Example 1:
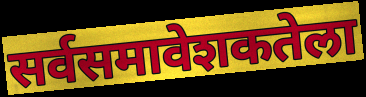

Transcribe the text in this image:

सर्वसमावेशकतेला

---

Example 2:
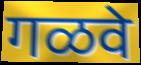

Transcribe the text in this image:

गळवे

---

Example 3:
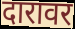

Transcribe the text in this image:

दारावर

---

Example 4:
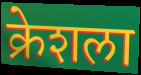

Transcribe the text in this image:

क्रेशला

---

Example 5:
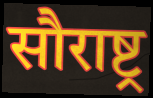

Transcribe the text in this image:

सौराष्ट्र